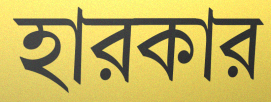
হারকার